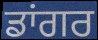
ਡਾਂਗਰ